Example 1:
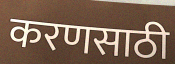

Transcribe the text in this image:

करणसाठी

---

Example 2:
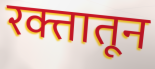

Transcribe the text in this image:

रक्तातून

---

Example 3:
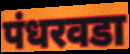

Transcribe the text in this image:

पंधरवडा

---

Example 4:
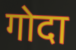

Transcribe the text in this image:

गोदा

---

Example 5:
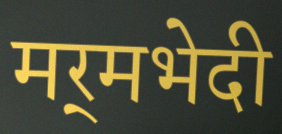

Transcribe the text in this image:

मर्मभेदी